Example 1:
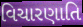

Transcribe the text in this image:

વિચારણાતિ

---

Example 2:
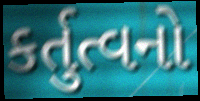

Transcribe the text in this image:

કર્તુત્વનો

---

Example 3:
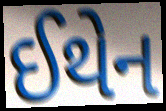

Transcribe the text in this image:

ઈથેન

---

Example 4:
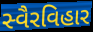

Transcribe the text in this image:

સ્વૈરવિહાર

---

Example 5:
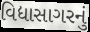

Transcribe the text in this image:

વિદ્યાસાગરનું